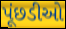
પૂંછડીઓ